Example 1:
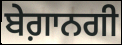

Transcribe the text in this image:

ਬੇਗ਼ਾਨਗੀ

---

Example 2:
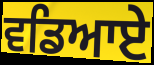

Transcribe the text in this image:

ਵਡਿਆਏ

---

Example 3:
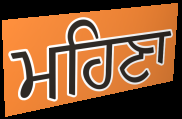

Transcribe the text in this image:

ਮਹਿਣਾ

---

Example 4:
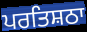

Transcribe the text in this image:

ਪਰਤਿਸ਼ਠਾ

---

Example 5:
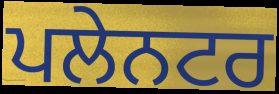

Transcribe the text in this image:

ਪਲੇਨਟਰ